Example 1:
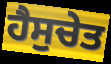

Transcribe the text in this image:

ਹੈਸੁਚੇਤ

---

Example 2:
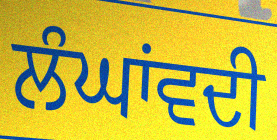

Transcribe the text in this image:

ਲੰਘਾਂਵਦੀ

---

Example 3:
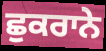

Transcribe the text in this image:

ਛੁਕਰਾਨੇ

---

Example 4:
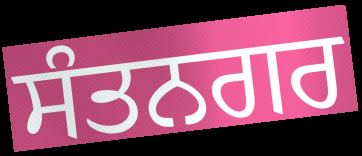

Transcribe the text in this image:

ਸੰਤਨਗਰ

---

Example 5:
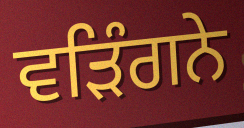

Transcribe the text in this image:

ਵੜਿੰਗਨੇ